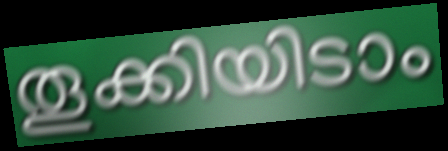
തൂക്കിയിടാം